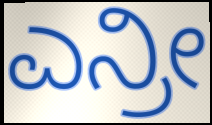
ಎನ್ರೀ